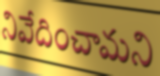
నివేదించామని